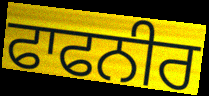
ਫਾਫਨੀਰ